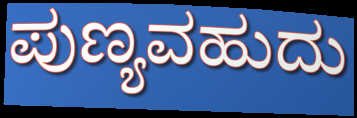
ಪುಣ್ಯವಹುದು